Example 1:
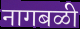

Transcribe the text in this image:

नागबळी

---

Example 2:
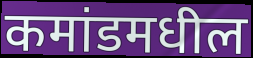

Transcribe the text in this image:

कमांडमधील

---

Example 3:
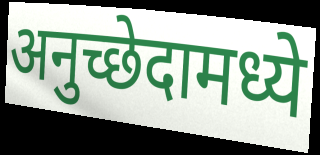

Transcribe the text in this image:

अनुच्छेदामध्ये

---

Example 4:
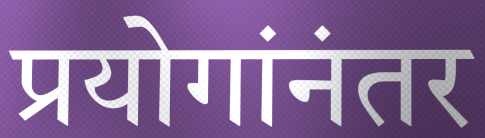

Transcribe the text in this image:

प्रयोगांनंतर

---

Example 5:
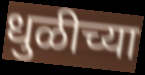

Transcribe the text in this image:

धुळीच्या